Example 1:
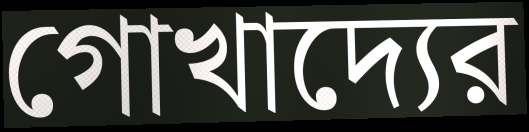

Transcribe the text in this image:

গোখাদ্যের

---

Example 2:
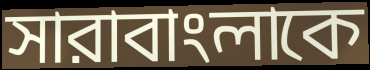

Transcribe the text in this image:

সারাবাংলাকে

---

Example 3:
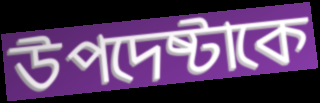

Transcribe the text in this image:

উপদেষ্টাকে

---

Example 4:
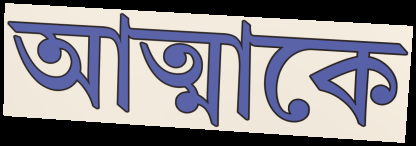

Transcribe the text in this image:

আত্মাকে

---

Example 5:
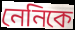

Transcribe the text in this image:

নেনিকে